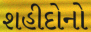
શહીદોનો